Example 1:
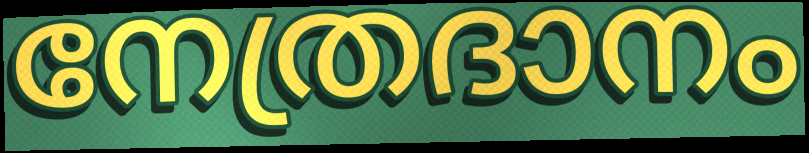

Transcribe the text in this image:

നേത്രദാനം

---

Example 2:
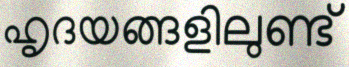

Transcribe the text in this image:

ഹൃദയങ്ങളിലുണ്ട്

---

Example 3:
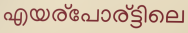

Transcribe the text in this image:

എയര്പോര്ട്ടിലെ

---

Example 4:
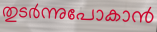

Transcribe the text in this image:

തുടർന്നുപോകാൻ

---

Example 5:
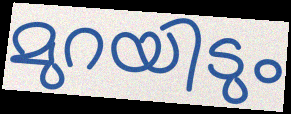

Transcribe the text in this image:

മുറയിടും